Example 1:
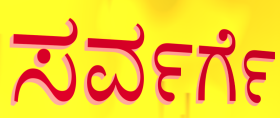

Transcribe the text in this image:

ಸರ್ವರ್ಗೆ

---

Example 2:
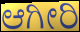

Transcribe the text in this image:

ಆಗೀರಿ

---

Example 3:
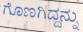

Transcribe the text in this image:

ಗೊಣಗಿದ್ದನ್ನು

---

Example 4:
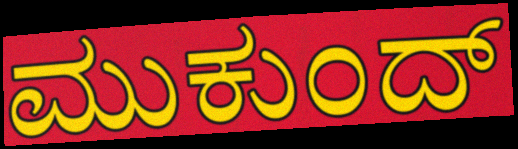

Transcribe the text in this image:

ಮುಕುಂದ್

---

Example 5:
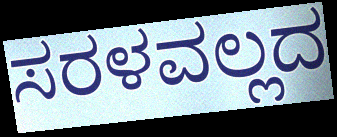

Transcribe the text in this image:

ಸರಳವಲ್ಲದ